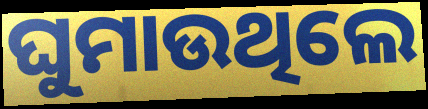
ଘୁମାଉଥିଲେ